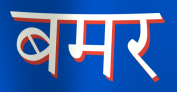
बमर